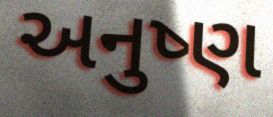
અનુષ્ણ